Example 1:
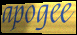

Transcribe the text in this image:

apogee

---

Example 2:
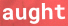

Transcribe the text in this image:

aught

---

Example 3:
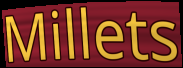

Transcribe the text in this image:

Millets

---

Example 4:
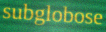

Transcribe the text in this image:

subglobose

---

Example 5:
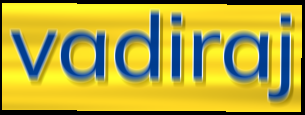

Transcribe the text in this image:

vadiraj